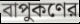
বাপুকণের